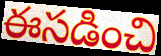
ఈసడించి